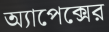
অ্যাপেক্সের